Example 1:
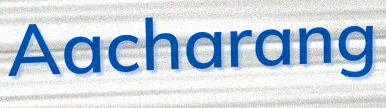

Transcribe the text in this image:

Aacharang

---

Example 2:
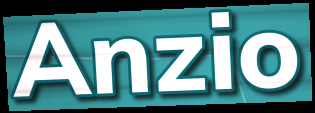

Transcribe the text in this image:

Anzio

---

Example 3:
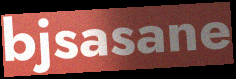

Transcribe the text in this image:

bjsasane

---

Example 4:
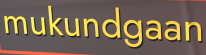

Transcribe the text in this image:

mukundgaan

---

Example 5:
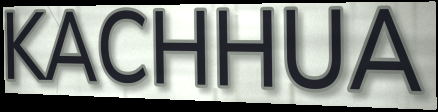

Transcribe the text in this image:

KACHHUA